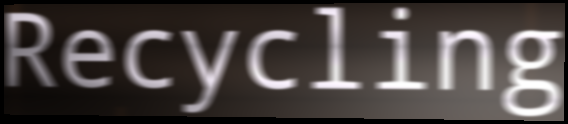
Recycling